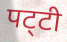
पट्‌टी